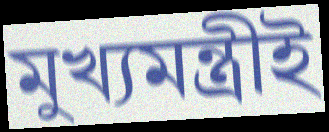
মুখ্যমন্ত্রীই